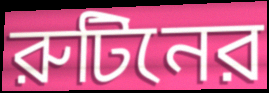
রুটিনের